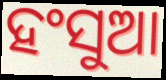
ହଂସୁଆ